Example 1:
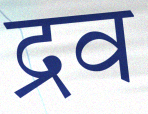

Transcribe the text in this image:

द्रव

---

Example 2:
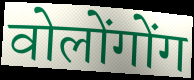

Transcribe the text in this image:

वोलोंगोंग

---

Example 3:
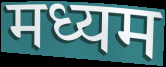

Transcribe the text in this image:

मध्यम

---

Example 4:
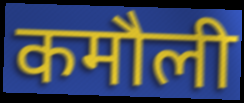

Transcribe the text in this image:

कमौली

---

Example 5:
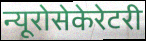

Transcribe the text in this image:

न्यूरोसेकेरेटरी